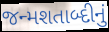
જન્મશતાબ્દીનું